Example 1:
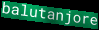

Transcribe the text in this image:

balutanjore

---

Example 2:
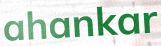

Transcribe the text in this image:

ahankar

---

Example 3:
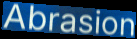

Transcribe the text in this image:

Abrasion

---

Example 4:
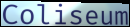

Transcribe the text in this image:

Coliseum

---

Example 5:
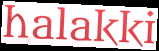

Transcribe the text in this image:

halakki